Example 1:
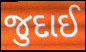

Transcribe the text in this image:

જુદાઈ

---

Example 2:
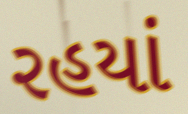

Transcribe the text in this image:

રહયાં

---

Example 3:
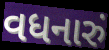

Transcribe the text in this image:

વધનારું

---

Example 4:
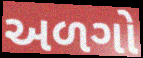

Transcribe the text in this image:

અળગો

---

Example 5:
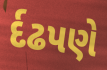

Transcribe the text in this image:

ર્દઢપણે